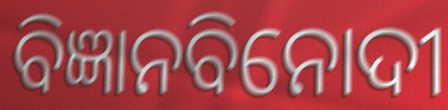
ବିଜ୍ଞାନବିନୋଦୀ